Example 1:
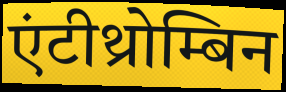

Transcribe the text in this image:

एंटीथ्रोम्बिन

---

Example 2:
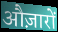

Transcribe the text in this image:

औज़ारों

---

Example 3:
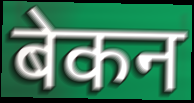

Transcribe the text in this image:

बेकन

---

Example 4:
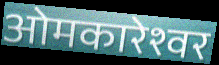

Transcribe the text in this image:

ओमकारेश्वर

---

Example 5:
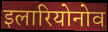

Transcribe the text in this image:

इलारियोनोव